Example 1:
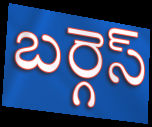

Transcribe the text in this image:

బర్గెస్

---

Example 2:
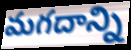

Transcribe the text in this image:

మగదాన్ని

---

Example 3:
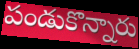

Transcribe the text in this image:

పండుకొన్నారు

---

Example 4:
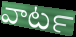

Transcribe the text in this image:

వాటర్‍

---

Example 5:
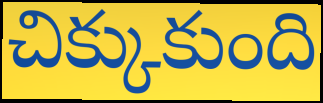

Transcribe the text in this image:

చిక్కుకుంది